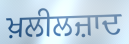
ਖ਼ਲੀਲਜ਼ਾਦ